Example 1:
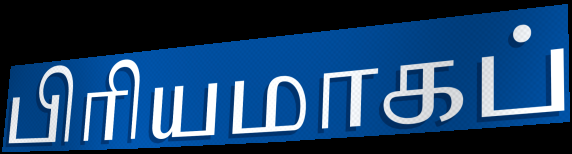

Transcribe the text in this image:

பிரியமாகப்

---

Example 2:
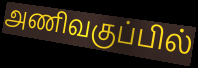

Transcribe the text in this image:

அணிவகுப்பில்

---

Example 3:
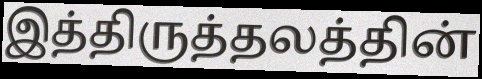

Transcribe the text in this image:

இத்திருத்தலத்தின்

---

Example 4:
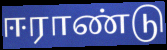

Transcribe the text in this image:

ஈராண்டு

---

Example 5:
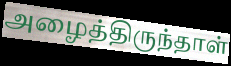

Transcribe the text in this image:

அழைத்திருந்தாள்